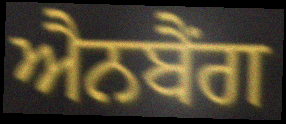
ਐਨਬੈਂਗ